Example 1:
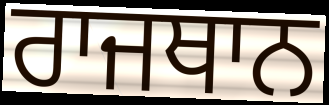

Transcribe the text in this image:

ਰਾਜਥਾਨ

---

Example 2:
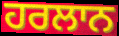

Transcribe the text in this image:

ਹਰਲਾਨ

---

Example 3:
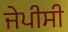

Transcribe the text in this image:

ਜੇਪੀਸੀ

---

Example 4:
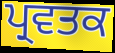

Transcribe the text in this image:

ਪ੍ਰਵਤਕ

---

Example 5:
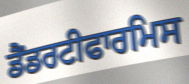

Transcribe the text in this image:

ਡੈਂਡਰਟੀਫਾਰਮਿਸ